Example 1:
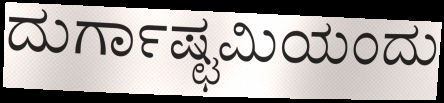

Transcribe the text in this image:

ದುರ್ಗಾಷ್ಟಮಿಯಂದು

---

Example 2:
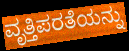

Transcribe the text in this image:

ವೃತ್ತಿಪರತೆಯನ್ನು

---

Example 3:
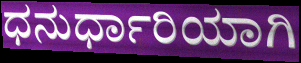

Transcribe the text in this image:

ಧನುರ್ಧಾರಿಯಾಗಿ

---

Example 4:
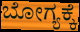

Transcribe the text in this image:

ಬೋಗ್ಯಕ್ಕೆ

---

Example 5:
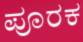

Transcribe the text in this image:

ಪೂರಕ